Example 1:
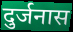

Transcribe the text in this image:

दुर्जनास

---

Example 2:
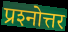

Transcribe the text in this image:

प्रश्‍नोत्तर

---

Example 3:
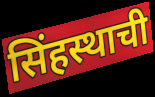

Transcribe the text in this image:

सिंहस्थाची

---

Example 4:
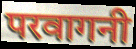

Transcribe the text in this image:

परवागनी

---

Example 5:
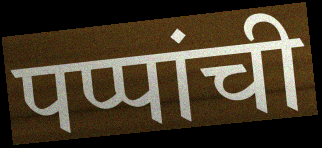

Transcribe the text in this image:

पप्पांची